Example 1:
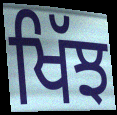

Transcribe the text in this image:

ਖਿੱਝ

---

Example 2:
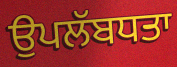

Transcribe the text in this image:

ਉਪਲੱਬਧਤਾ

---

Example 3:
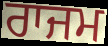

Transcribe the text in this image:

ਰਾਜਮ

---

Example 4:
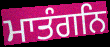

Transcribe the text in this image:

ਮਾਤੰਗਨਿ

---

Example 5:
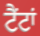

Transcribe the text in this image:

ਟੈਂਟਾਂ